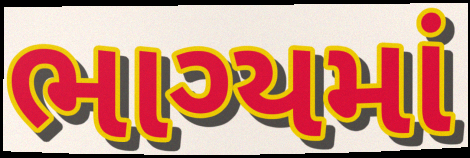
ભાગ્યમાં